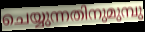
ചെയ്യുന്നതിനുമുമ്പു